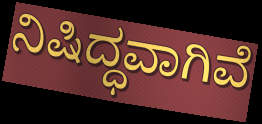
ನಿಷಿದ್ಧವಾಗಿವೆ